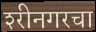
श्रीनगरचा